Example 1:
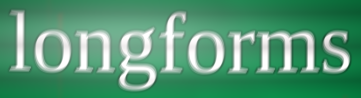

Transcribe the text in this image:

longforms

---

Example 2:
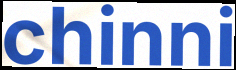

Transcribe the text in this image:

chinni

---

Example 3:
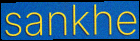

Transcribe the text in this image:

sankhe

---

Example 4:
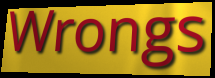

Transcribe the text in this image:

Wrongs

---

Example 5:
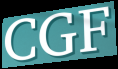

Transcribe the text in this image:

CGF